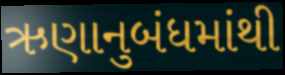
ઋણાનુબંધમાંથી